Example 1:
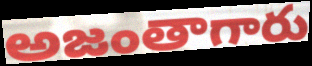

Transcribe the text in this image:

అజంతాగారు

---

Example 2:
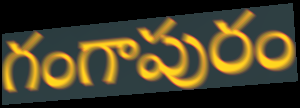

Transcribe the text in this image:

గంగాపురం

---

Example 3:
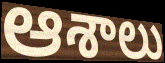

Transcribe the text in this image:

ఆశాలు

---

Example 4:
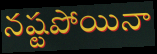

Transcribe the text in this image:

నష్టపోయినా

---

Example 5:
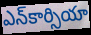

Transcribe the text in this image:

ఎన్‌కార్సియా